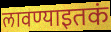
लावण्याइतकं